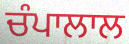
ਚੰਪਾਲਾਲ